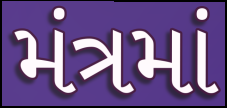
મંત્રમાં